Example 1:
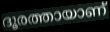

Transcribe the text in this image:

ദൂരത്തായാണ്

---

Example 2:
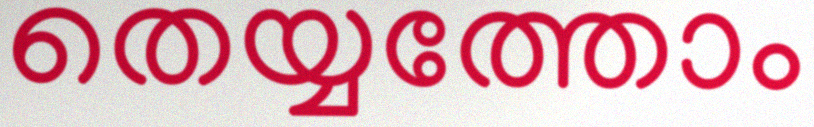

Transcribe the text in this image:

തെയ്യത്തോം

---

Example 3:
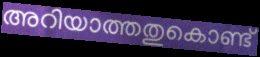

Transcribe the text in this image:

അറിയാത്തതുകൊണ്ട്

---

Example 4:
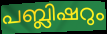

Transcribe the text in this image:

പബ്ലിഷറും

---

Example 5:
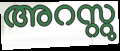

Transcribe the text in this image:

അറസ്റ്റു